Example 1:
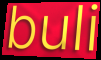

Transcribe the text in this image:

buli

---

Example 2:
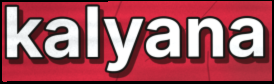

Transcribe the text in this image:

kalyana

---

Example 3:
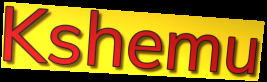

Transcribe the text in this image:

Kshemu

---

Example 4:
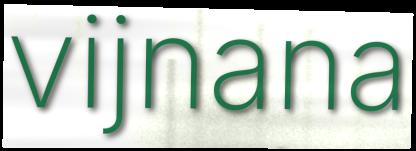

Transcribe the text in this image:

vijnana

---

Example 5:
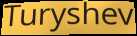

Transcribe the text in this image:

Turyshev